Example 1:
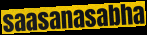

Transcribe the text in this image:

saasanasabha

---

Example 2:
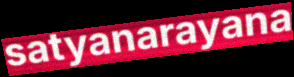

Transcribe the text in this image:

satyanarayana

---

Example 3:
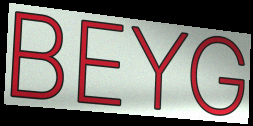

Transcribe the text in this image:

BEYG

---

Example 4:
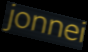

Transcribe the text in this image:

jonnei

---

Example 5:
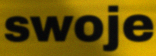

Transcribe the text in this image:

swoje